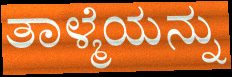
ತಾಳ್ಮೆಯನ್ನು